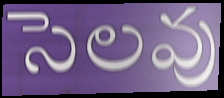
సెలవు